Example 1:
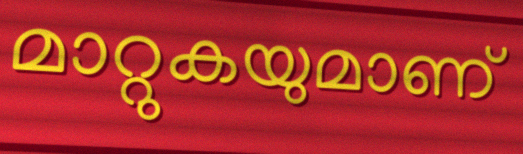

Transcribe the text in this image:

മാറ്റുകയുമാണ്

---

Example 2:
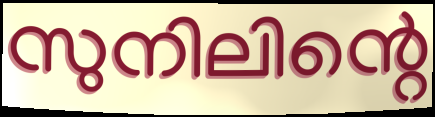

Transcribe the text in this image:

സുനിലിന്റെ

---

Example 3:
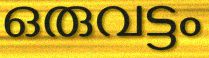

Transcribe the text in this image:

ഒരുവട്ടം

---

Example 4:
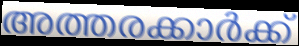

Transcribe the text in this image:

അത്തരക്കാർക്ക്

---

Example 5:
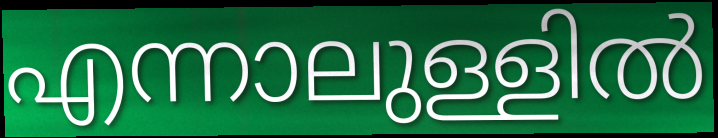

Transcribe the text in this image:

എന്നാലുള്ളിൽ